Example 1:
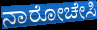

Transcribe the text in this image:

ನಾರೋಚೇಸಿ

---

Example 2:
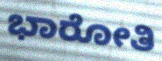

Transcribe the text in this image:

ಭಾರೋತಿ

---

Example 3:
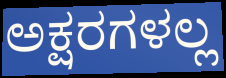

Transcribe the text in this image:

ಅಕ್ಷರಗಳಲ್ಲ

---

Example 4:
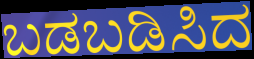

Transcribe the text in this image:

ಬಡಬಡಿಸಿದ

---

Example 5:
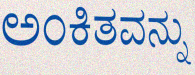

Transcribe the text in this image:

ಅಂಕಿತವನ್ನು